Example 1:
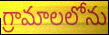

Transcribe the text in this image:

గ్రామాలలోను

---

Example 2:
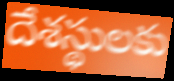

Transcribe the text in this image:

దేశస్థులకు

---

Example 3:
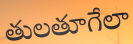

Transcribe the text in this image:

తులతూగేలా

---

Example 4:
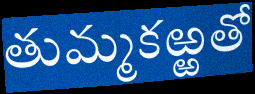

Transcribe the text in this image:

తుమ్మకఱ్ఱతో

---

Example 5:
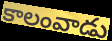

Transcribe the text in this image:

కాలంవాడు